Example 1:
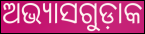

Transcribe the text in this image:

ଅଭ୍ୟାସଗୁଡ଼ାକ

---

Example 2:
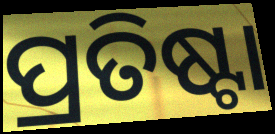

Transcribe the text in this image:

ପ୍ରତିଷ୍ଟା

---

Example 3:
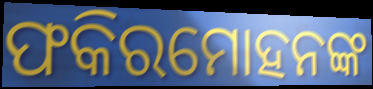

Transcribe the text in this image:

ଫକିରମୋହନଙ୍କ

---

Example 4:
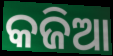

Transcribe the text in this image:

କଜିଆ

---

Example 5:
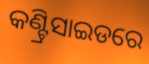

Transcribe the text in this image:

କଣ୍ଟ୍ରିସାଇଡରେ